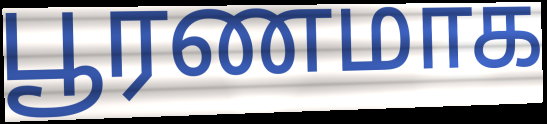
பூரணமாக